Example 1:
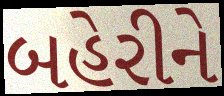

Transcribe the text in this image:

બહેરીને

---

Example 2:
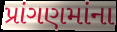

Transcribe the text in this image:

પ્રાંગણમાંના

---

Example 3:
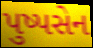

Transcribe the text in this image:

પુષ્પસેન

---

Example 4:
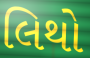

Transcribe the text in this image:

લિથો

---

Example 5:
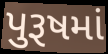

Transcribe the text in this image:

પુરૂષમાં